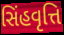
સિંહવૃત્તિ